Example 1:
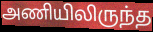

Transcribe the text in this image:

அணியிலிருந்த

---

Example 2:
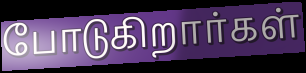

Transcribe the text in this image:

போடுகிறார்கள்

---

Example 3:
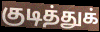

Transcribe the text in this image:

குடித்துக்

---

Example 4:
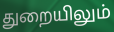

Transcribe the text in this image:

துறையிலும்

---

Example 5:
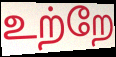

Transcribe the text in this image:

உற்றே